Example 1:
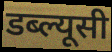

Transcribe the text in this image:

डब्ल्यूसी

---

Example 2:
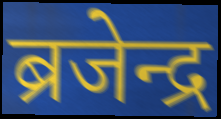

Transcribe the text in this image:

ब्रजेन्द्र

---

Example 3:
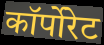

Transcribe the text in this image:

कॉर्पोरेट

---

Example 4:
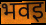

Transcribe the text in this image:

भवइ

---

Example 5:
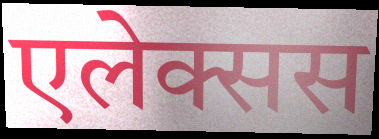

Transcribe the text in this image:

एलेक्सस